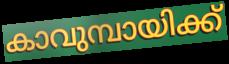
കാവുമ്പായിക്ക്